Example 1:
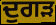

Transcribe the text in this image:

ਦੁਗੜ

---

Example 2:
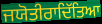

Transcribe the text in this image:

ਜਯੋਤੀਰਾਦਿੱਤਿਆ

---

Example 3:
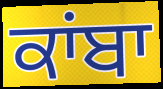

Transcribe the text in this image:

ਕਾਂਬਾ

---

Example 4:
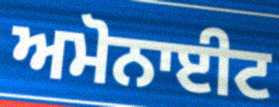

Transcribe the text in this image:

ਅਮੋਨਾਈਟ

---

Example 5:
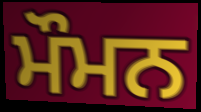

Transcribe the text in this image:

ਮੌਮਨ